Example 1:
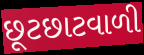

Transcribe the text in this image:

છૂટછાટવાળી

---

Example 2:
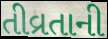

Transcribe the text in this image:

તીવ્રતાની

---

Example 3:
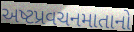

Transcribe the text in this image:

અષ્ટપ્રવચનમાતાનો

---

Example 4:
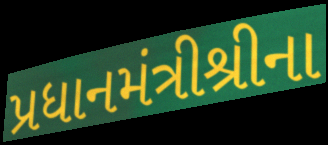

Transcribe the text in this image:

પ્રધાનમંત્રીશ્રીના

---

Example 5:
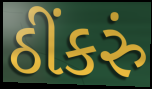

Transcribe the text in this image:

ઠીંકરું